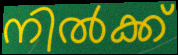
നിൽക്ക്